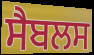
ਸੈਬਲਸ